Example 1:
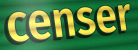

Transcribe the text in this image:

censer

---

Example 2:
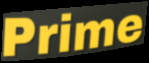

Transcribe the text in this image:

Prime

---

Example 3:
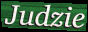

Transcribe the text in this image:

Judzie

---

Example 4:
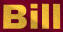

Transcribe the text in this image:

Bill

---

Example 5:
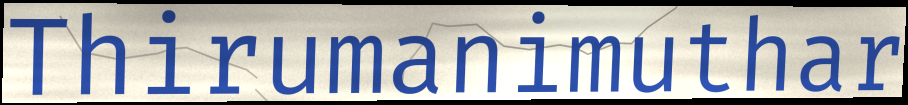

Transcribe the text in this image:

Thirumanimuthar